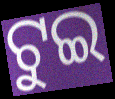
ଟୁଇ